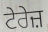
ਟੇਰੇਜ਼